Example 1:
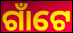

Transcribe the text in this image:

ଗାଁଟେ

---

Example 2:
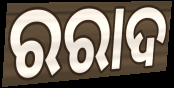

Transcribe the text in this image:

ରରାଦ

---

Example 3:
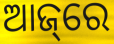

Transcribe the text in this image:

ଆଜ୍‌ରେ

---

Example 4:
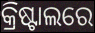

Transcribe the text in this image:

କ୍ରିଷ୍ଟାଲରେ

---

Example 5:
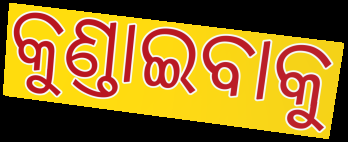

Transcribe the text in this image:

କୁଣ୍ଡାଇବାକୁ